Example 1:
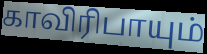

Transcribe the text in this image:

காவிரிபாயும்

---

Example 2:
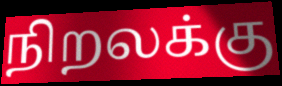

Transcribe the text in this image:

நிறலக்கு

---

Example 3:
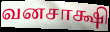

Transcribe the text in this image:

வனசாக்ஷி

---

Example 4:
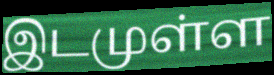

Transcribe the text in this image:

இடமுள்ள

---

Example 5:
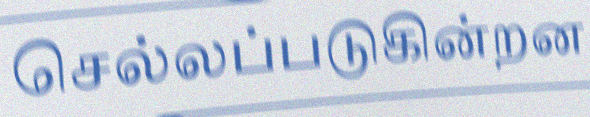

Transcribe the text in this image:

செல்லப்படுகின்றன